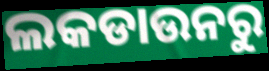
ଲକଡାଉନରୁ